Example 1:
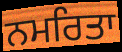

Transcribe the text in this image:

ਨਮਰਿਤਾ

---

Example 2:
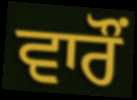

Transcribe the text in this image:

ਵਾਰੌਂ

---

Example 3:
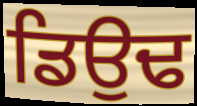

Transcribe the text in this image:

ਡਿਉਢ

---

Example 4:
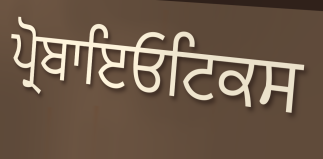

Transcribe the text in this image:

ਪ੍ਰੋਬਾਇਓਟਿਕਸ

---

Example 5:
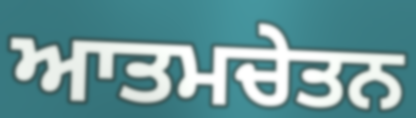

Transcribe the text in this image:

ਆਤਮਚੇਤਨ